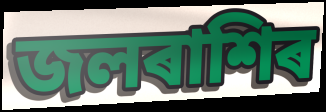
জলৰাশিৰ